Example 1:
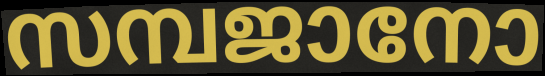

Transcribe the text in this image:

സമ്പജാനോ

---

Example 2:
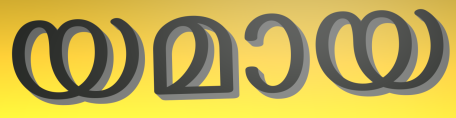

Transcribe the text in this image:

യമായ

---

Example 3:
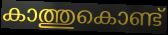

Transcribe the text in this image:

കാത്തുകൊണ്ട്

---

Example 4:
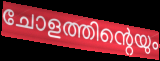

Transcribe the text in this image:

ചോളത്തിന്റെയും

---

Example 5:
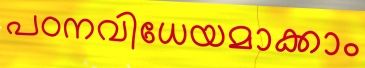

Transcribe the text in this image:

പഠനവിധേയമാക്കാം